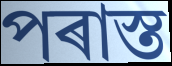
পৰাস্ত